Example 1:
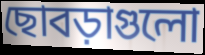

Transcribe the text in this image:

ছোবড়াগুলো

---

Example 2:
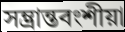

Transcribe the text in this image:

সম্ভ্রান্তবংশীয়া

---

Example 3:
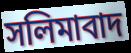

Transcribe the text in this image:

সলিমাবাদ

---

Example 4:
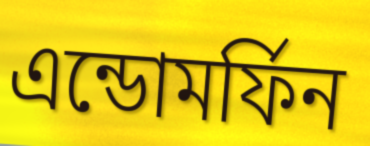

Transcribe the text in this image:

এন্ডোমর্ফিন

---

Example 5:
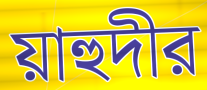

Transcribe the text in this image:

য়াহুদীর